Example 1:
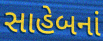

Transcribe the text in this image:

સાહેબનાં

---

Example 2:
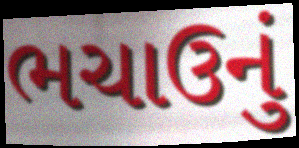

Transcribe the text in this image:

ભચાઉનું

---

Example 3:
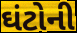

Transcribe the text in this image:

ઘંટોની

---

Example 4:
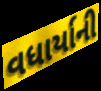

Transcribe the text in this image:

વધાર્યાની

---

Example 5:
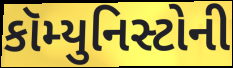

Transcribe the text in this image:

કૉમ્યુનિસ્ટોની